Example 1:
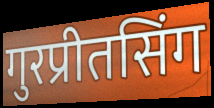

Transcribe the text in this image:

गुरप्रीतसिंग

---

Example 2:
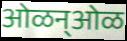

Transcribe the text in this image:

ओळन्ओळ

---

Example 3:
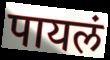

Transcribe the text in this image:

पायलं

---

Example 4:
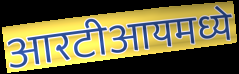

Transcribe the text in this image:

आरटीआयमध्ये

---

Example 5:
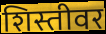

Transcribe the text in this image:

शिस्तीवर